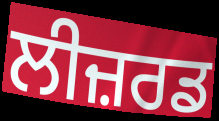
ਲੀਜ਼ਰਡ